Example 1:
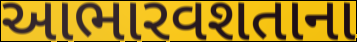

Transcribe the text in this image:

આભારવશતાના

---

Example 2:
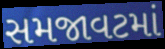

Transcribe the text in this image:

સમજાવટમાં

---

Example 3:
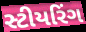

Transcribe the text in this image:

સ્ટીયરિંગ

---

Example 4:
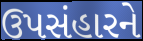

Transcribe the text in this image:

ઉપસંહારને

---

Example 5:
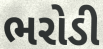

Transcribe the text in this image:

ભરોડી